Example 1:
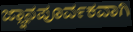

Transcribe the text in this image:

ಜ್ಞಾನಪೂರ್ವಕವಾಗಿ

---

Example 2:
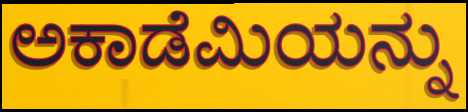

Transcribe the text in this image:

ಅಕಾಡೆಮಿಯನ್ನು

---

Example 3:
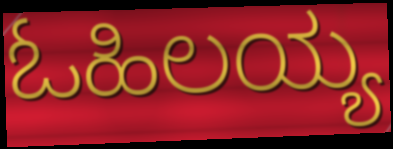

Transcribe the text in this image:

ಓಹಿಲಯ್ಯ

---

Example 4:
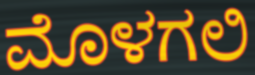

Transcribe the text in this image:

ಮೊಳಗಲಿ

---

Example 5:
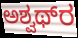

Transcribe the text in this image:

ಅಶ್ವಥ್‌ರ